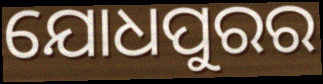
ଯୋଧପୁରର